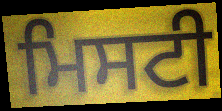
ਮਿਸਟੀ